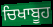
ਚਿਖਾਬੂਹ